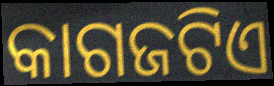
କାଗଜଟିଏ